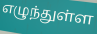
எழுந்துள்ள